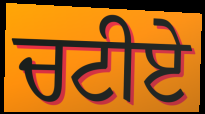
ਚਟੀਏ